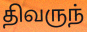
திவருந்